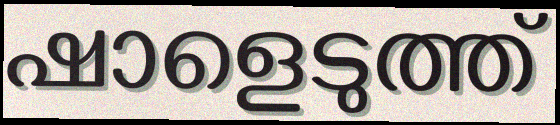
ഷാളെടുത്ത്